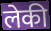
लेकी